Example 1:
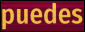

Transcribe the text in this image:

puedes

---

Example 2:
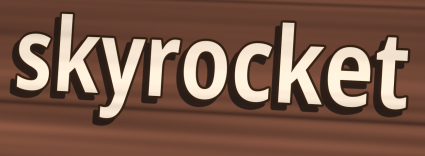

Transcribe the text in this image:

skyrocket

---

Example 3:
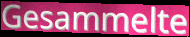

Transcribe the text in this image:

Gesammelte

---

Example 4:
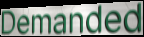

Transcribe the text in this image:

Demanded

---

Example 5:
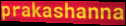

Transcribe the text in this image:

prakashanna